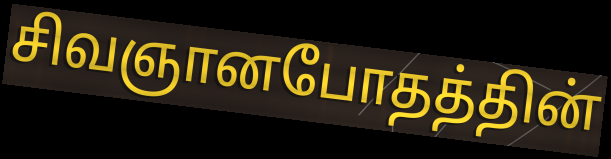
சிவஞானபோதத்தின்